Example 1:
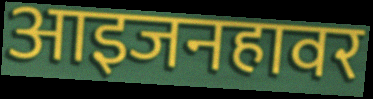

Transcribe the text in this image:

आइजनहावर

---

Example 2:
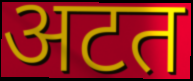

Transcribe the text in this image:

अटत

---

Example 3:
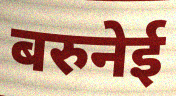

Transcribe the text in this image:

बरुनेई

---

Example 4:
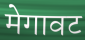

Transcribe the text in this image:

मेगावट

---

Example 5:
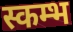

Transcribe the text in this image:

स्कम्भ